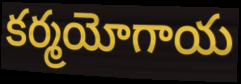
కర్మయోగాయ